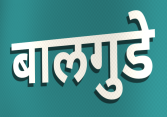
बालगुडे